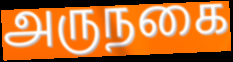
அருநகை